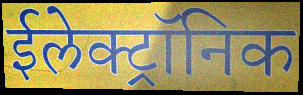
ईलेक्ट्रॉनिक